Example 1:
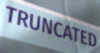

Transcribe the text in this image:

TRUNCATED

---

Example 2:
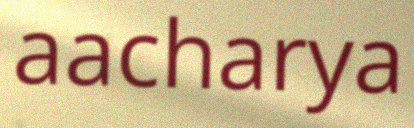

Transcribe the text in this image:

aacharya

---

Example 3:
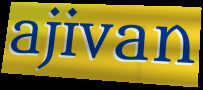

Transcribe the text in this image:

ajivan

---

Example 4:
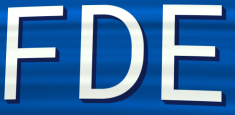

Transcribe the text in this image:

FDE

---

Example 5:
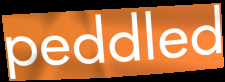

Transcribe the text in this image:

peddled